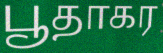
பூதாகர